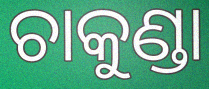
ଚାକୁଣ୍ଡା